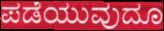
ಪಡೆಯುವುದೂ